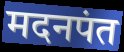
मदनपंत